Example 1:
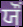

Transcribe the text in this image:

ਯੌਂ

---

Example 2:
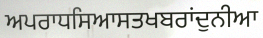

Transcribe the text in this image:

ਅਪਰਾਧਸਿਆਸਤਖਬਰਾਂਦੁਨੀਆ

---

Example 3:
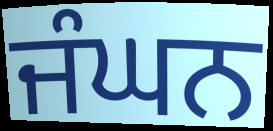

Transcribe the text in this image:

ਜੰਘਨ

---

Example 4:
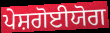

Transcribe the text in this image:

ਪੇਸ਼ਗੋਈਯੋਗ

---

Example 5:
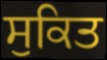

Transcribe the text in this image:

ਸੁਕਿਤ